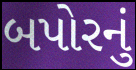
બપોરનું